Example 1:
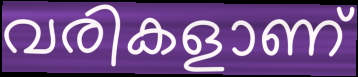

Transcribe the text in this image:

വരികളാണ്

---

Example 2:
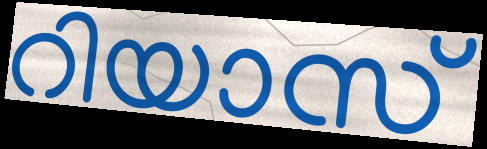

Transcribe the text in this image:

റിയാസ്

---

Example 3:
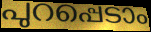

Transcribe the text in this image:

പുറപ്പെടാം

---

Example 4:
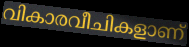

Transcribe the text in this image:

വികാരവീചികളാണ്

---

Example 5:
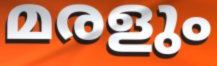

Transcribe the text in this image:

മരളും